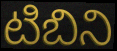
టిబిని